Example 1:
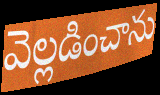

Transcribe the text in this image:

వెల్లడించాను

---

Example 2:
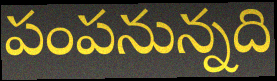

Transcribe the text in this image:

పంపనున్నది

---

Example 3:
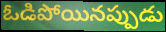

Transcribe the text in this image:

ఓడిపోయినప్పుడు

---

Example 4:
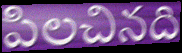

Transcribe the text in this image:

పిలచినది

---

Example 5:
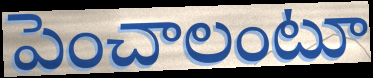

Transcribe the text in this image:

పెంచాలంటూ